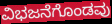
ವಿಭಜನೆಗೊಂಡವು